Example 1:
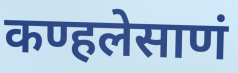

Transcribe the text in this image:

कण्हलेसाणं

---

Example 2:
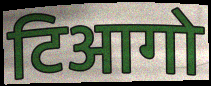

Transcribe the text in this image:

टिआगो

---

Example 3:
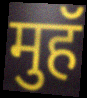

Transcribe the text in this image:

मुहॅ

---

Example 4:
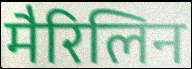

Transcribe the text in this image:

मैरिलिन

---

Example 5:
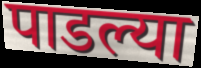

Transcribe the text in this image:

पाडल्या